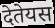
देतेयस